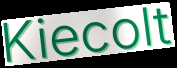
Kiecolt